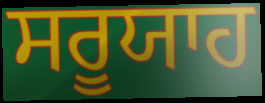
ਸਰੂਯਾਹ